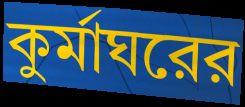
কুর্মাঘরের